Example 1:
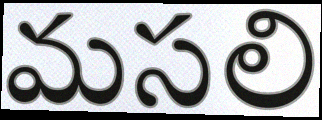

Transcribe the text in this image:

మసలి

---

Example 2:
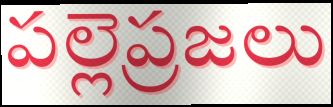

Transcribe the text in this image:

పల్లెప్రజలు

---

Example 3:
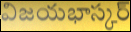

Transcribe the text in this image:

విజయభాస్కర్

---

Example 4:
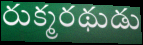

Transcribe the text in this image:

రుక్మరథుడు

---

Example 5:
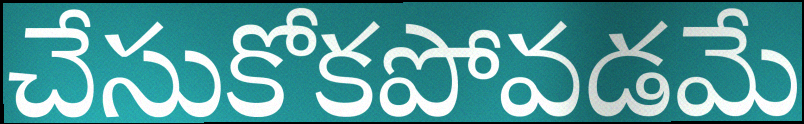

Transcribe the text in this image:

చేసుకోకపోవడమే